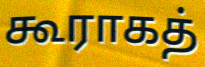
கூராகத்